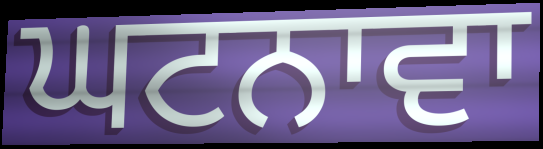
ਘਟਨਾਵਾ